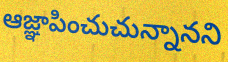
ఆజ్ఞాపించుచున్నానని